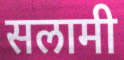
सलामी